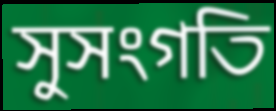
সুসংগতি